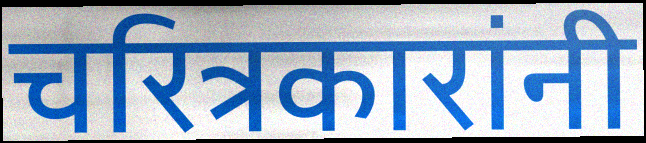
चरित्रकारांनी